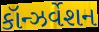
કૉન્ઝર્વેશન